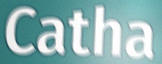
Catha